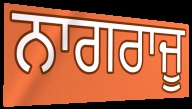
ਨਾਗਰਾਜੂ